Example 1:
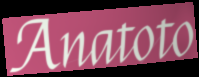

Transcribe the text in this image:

Anatoto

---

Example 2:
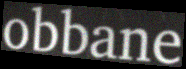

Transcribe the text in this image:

obbane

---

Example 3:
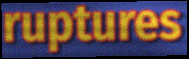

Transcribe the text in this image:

ruptures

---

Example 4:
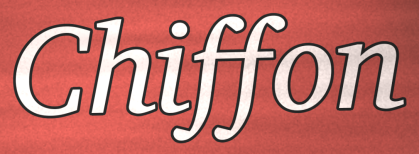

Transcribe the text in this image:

Chiffon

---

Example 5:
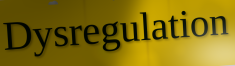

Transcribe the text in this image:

Dysregulation